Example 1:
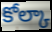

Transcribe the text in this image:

కోల్కా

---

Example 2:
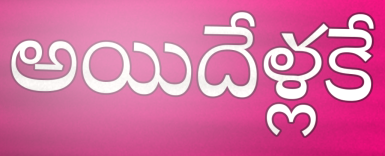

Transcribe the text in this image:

అయిదేళ్లకే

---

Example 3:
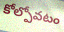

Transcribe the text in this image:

కోల్పోవటం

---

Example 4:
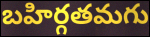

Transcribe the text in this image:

బహిర్గతమగు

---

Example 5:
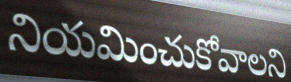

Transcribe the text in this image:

నియమించుకోవాలని